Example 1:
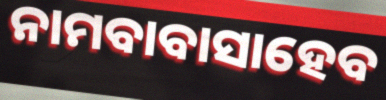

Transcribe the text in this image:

ନାମବାବାସାହେବ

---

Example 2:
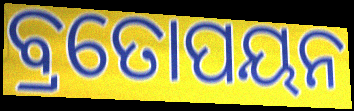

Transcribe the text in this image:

ବ୍ରତୋପୟନ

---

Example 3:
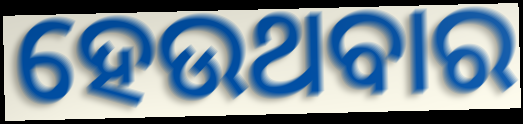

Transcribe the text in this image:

ହେଉଥବାର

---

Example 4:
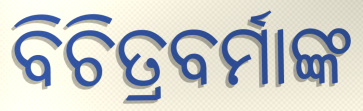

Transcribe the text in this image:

ବିଚିତ୍ରବର୍ମାଙ୍କ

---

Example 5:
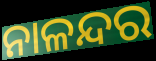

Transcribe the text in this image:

ନାଳନ୍ଦର